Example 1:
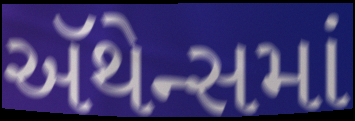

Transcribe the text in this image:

ઍથેન્સમાં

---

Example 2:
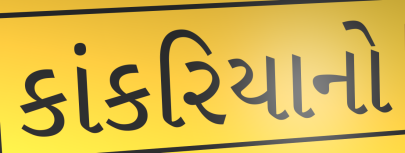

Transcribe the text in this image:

કાંકરિયાનો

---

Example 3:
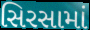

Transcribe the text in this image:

સિરસામાં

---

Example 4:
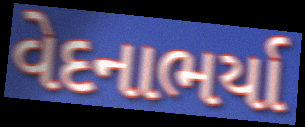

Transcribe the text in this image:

વેદનાભર્યા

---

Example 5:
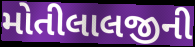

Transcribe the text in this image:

મોતીલાલજીની